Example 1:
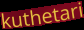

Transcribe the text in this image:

kuthetari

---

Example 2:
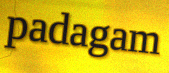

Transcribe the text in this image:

padagam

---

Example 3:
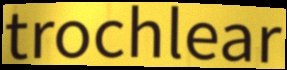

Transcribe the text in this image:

trochlear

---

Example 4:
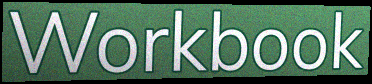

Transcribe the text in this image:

Workbook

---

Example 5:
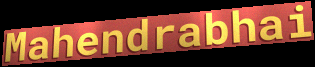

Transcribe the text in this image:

Mahendrabhai